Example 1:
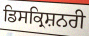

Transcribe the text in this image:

ਡਿਸਕ੍ਰਿਸ਼ਨਰੀ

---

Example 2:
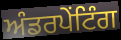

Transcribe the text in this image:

ਅੰਡਰਪੇਂਟਿੰਗ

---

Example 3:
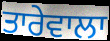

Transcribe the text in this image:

ਤਾਰੇਵਾਲਾ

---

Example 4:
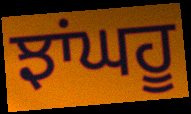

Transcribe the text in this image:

ਝਾਂਘਹੂ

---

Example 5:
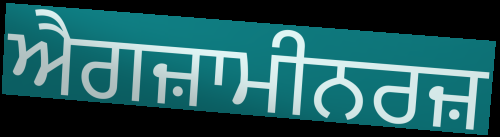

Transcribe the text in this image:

ਐਗਜ਼ਾਮੀਨਰਜ਼